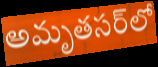
అమృతసర్‌లో